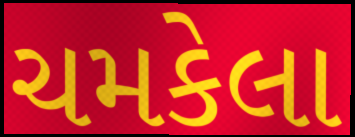
ચમકેલા